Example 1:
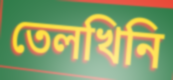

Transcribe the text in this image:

তেলখিনি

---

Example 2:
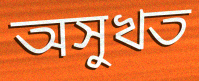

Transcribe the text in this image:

অসুখত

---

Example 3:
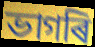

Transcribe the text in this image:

ভাগৰি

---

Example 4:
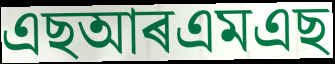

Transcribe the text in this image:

এছআৰএমএছ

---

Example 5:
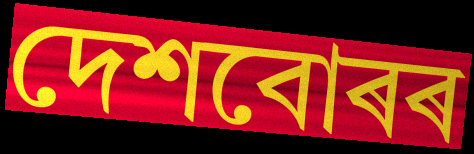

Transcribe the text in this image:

দেশবোৰৰ